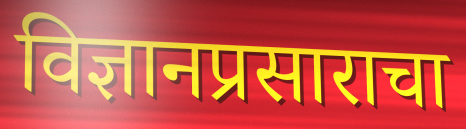
विज्ञानप्रसाराचा